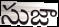
సుజా